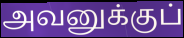
அவனுக்குப்